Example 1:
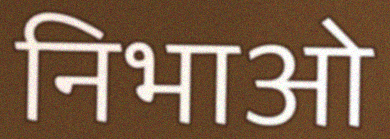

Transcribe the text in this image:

निभाओ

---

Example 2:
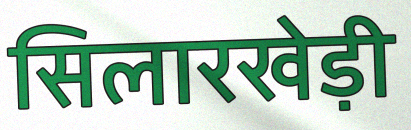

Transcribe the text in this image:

सिलारखेड़ी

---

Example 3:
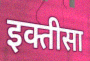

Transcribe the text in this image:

इक्तीसा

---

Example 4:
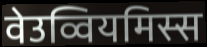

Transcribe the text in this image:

वेउव्वियमिस्स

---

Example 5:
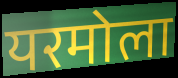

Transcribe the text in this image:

यरमोला